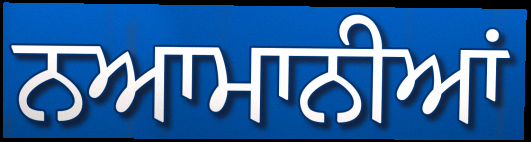
ਨਆਮਾਨੀਆਂ